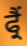
ਫ੍ਰੈਂ